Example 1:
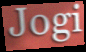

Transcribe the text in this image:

Jogi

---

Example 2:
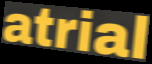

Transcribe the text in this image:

atrial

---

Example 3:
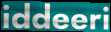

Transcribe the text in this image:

iddeeri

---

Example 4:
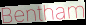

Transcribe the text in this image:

Bentham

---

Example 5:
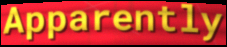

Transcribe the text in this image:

Apparently